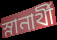
স্নানার্থী